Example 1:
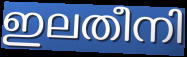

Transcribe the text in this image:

ഇലതീനി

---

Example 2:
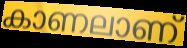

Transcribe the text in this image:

കാണലാണ്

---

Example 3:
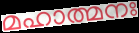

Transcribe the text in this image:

മഹാത്മനഃ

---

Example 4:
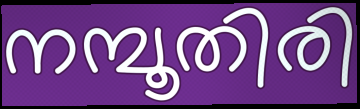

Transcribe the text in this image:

നമ്പൂതിരി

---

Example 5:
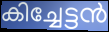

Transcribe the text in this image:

കിച്ചേട്ടൻ